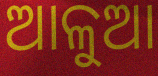
ଆଳୁଆ